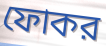
ফোকর